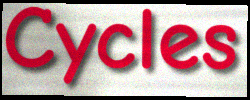
Cycles